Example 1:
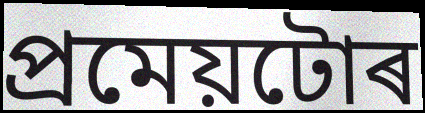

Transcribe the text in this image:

প্ৰমেয়টোৰ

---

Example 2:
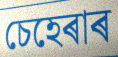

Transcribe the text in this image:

চেহেৰাৰ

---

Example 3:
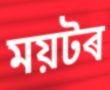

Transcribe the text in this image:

ময়টৰ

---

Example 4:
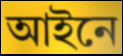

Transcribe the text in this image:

আইনে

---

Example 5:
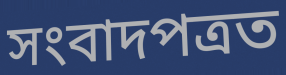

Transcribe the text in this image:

সংবাদপত্ৰত